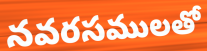
నవరసములతో